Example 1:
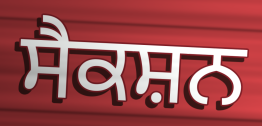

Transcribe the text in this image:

ਸੈਕਸ਼ਨ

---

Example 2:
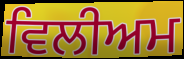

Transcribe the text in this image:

ਵਿਲੀਅਮ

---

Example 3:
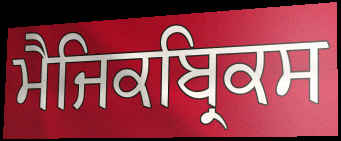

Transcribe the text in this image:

ਮੈਜਿਕਬ੍ਰਿਕਸ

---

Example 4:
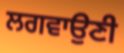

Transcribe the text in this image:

ਲਗਵਾਉਣੀ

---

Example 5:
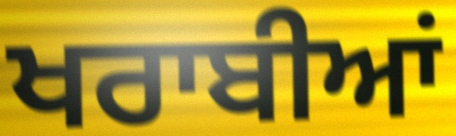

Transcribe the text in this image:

ਖਰਾਬੀਆਂ